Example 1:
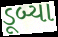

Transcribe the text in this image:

ડૂબ્યા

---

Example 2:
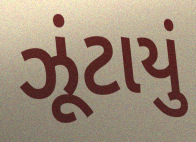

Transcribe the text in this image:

ઝૂંટાયું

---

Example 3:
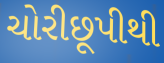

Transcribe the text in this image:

ચોરીછૂપીથી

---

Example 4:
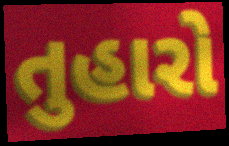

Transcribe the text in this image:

તુહારો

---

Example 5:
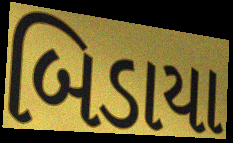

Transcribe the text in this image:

બિડાયા